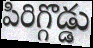
పిరిగ్గొడ్డు